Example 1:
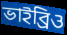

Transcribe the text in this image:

ভাইব্রিও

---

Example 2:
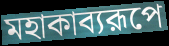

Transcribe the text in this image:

মহাকাব্যরূপে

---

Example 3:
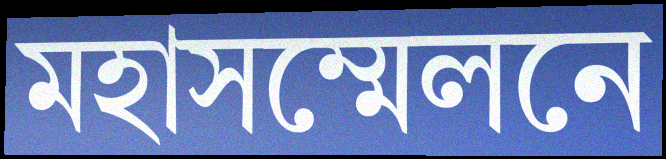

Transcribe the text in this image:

মহাসম্মেলনে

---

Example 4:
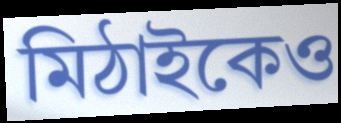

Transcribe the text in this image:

মিঠাইকেও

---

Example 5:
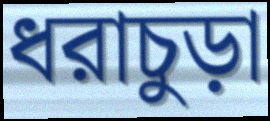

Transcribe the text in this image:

ধরাচুড়া